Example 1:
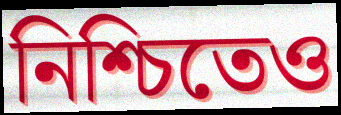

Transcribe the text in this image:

নিশ্চিতেও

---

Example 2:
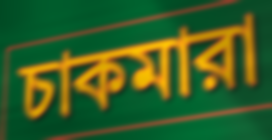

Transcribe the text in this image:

চাকমারা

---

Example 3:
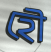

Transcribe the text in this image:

হৌ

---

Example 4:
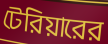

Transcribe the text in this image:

টেরিয়ারের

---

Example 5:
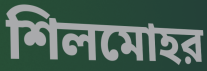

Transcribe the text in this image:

শিলমোহর